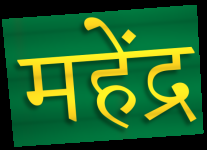
महेंद्र